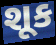
શૂક